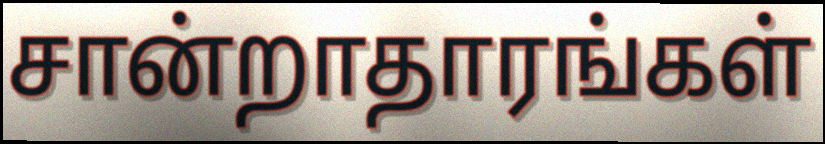
சான்றாதாரங்கள்